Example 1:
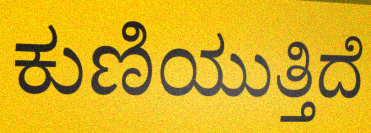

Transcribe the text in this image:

ಕುಣಿಯುತ್ತಿದೆ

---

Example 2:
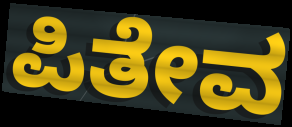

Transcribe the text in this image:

ಪಿತೇವ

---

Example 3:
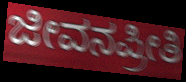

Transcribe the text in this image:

ಜೀವನಪ್ರೀತಿ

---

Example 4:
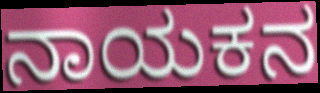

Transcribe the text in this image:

ನಾಯಕನ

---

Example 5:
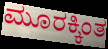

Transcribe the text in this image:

ಮೂರಕ್ಕಿಂತ